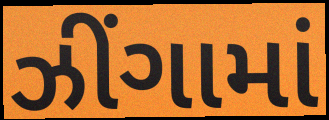
ઝીંગામાં